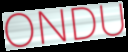
ONDU